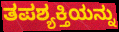
ತಪಶ್ಯಕ್ತಿಯನ್ನು